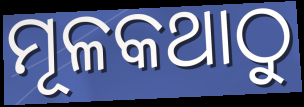
ମୂଳକଥାଠୁ